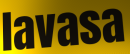
lavasa